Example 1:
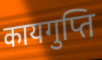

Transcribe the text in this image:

कायगुप्ति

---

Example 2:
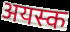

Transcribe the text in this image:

अयस्क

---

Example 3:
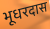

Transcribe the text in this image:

भूधरदास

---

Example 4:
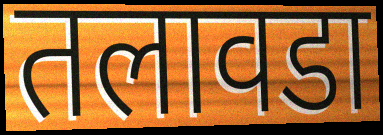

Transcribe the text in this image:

तलावडा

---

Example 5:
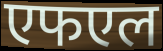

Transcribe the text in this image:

एफएल